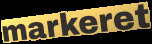
markeret